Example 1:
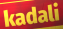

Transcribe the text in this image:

kadali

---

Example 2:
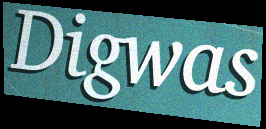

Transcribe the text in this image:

Digwas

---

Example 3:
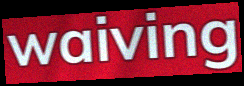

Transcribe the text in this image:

waiving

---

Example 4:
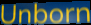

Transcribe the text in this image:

Unborn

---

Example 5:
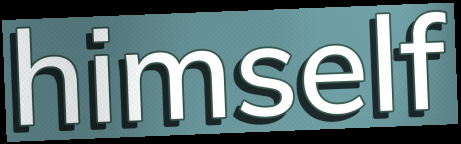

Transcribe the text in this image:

himself